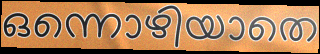
ഒന്നൊഴിയാതെ